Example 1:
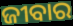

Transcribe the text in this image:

ଜୀବାର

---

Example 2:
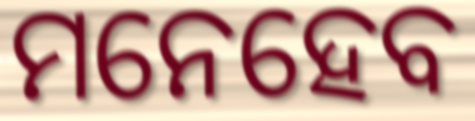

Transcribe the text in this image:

ମନେହେବ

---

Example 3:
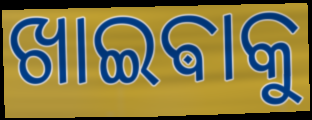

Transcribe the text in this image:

ଖାଇଵାକୁ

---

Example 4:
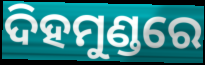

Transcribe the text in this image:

ଦିହମୁଣ୍ଡରେ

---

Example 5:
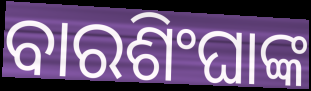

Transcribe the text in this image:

ବାରଶିଂଘାଙ୍କ